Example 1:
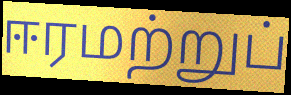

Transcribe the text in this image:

ஈரமற்றுப்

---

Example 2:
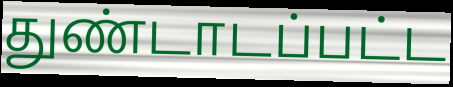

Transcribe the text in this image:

துண்டாடப்பட்ட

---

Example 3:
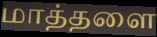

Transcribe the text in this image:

மாத்தளை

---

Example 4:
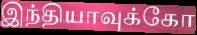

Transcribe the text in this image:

இந்தியாவுக்கோ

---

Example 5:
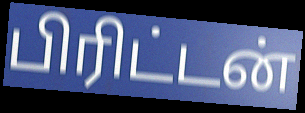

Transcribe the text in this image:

பிரிட்டன்